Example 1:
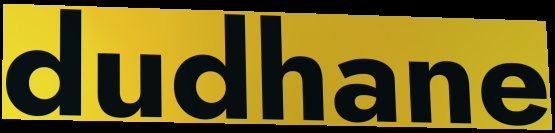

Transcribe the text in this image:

dudhane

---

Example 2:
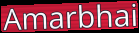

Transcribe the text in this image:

Amarbhai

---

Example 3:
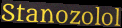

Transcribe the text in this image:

Stanozolol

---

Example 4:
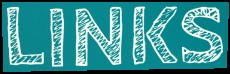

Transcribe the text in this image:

LINKS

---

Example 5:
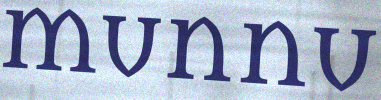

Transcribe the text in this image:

munnu